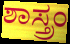
ಶಾಸ್ತ್ರಂ